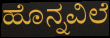
ಹೊನ್ನವಿಲೆ